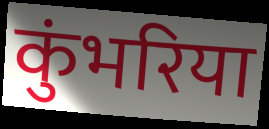
कुंभरिया